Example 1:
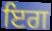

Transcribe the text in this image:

ਇਗ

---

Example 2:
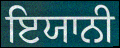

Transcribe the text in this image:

ਇਯਾਨੀ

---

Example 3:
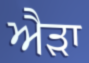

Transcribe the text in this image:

ਐੜਾ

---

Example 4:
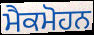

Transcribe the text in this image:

ਮੈਕਮੋਹਨ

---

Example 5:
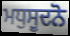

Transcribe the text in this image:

ਮਧੁਸੂਦਨੋ